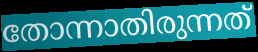
തോന്നാതിരുന്നത്